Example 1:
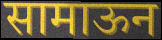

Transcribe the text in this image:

सामाऊन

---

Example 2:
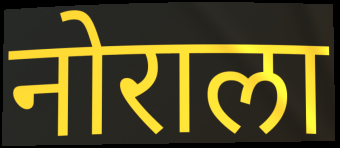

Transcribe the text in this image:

नोराला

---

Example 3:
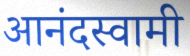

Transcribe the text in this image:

आनंदस्वामी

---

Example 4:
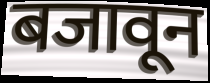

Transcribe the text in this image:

बजावून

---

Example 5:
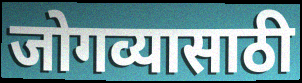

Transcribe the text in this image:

जोगव्यासाठी